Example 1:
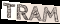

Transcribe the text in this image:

TRAM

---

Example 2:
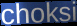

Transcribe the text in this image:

choksi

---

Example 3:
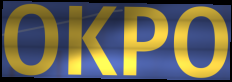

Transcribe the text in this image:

OKPO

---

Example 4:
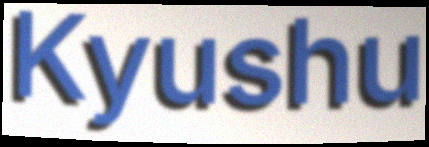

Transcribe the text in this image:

Kyushu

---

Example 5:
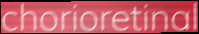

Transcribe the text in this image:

chorioretinal